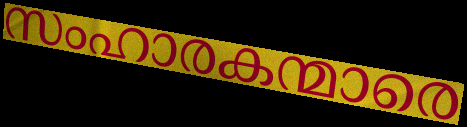
സംഹാരകന്മാരെ